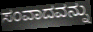
ಸಂವಾದವನ್ನು